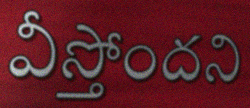
వీస్తోందని